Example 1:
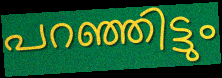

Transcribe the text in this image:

പറഞ്ഞിട്ടും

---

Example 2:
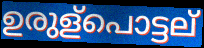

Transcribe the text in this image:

ഉരുള്പൊട്ടല്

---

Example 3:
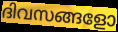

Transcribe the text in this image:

ദിവസങ്ങളോ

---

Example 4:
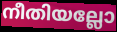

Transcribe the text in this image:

നീതിയല്ലോ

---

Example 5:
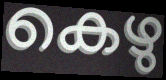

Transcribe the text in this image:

കെഴു